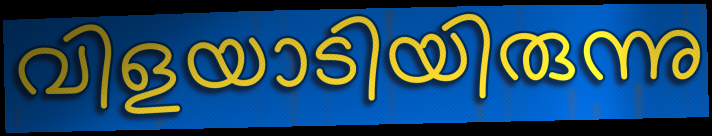
വിളയാടിയിരുന്നു